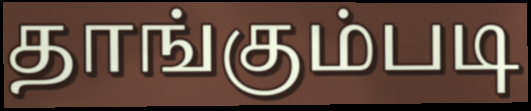
தாங்கும்படி